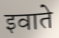
इवाते